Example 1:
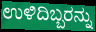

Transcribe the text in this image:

ಉಳಿದಿಬ್ಬರನ್ನು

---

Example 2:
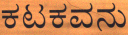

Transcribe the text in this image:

ಕಟಕವನು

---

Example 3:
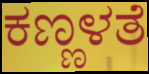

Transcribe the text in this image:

ಕಣ್ಣಳತೆ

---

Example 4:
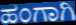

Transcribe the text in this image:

ಹಂಗಾಗಿ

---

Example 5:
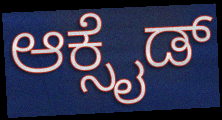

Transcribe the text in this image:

ಆಕ್ಸೈಡ್